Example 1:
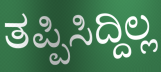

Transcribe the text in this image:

ತಪ್ಪಿಸಿದ್ದಿಲ್ಲ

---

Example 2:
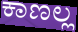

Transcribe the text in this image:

ಕಾಣಲ್ಲ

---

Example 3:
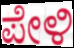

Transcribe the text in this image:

ಪೇಳಿ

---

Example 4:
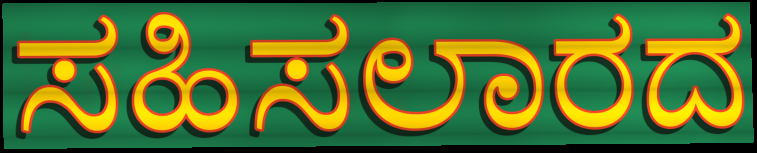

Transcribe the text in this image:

ಸಹಿಸಲಾರದ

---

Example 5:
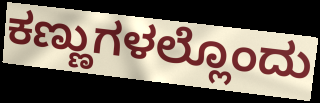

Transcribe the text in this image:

ಕಣ್ಣುಗಳಲ್ಲೊಂದು